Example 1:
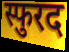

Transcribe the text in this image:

स्फुरद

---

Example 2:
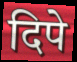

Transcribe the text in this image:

दिपे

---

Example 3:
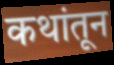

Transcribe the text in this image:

कथांतून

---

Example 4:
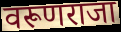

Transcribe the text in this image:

वरूणराजा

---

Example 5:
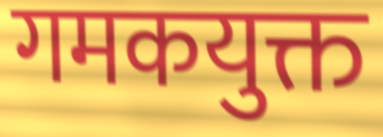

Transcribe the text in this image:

गमकयुक्त